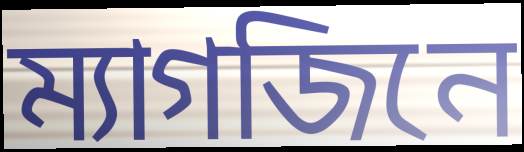
ম্যাগজিনে